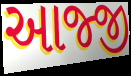
આજ્જી